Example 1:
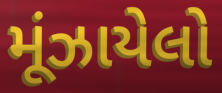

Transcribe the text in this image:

મૂંઝાયેલો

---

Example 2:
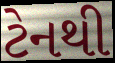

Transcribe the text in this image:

ટેનથી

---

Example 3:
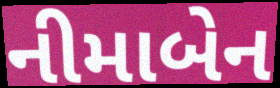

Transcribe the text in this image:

નીમાબેન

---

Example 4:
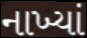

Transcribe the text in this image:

નાખ્યાં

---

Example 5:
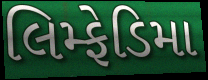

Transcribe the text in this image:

લિમ્ફેડિમા